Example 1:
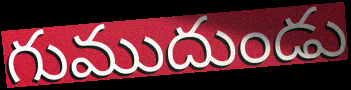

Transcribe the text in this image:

గుముదుండు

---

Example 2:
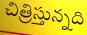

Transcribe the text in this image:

చిత్రిస్తున్నది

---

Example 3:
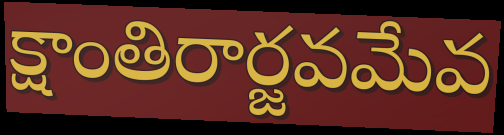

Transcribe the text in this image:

క్షాంతిరార్జవమేవ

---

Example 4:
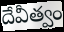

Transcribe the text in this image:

దేవీత్వం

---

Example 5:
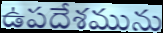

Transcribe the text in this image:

ఉపదేశమును